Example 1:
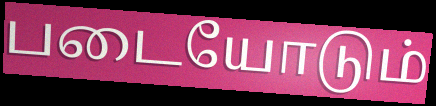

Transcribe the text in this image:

படையோடும்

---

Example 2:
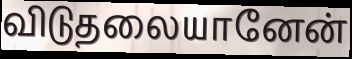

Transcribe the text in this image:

விடுதலையானேன்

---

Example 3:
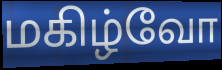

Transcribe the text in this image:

மகிழ்வோ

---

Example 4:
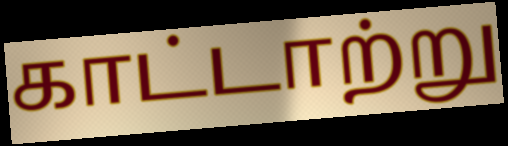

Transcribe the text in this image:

காட்டாற்று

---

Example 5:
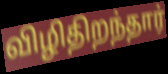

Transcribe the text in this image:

விழிதிறந்தார்